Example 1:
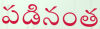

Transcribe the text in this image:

పడినంత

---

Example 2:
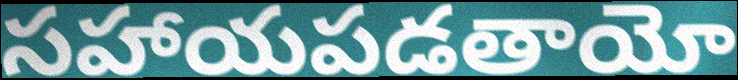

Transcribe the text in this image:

సహాయపడతాయో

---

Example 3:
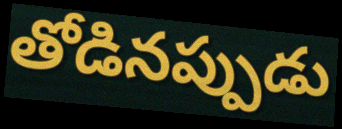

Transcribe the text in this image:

తోడినప్పుడు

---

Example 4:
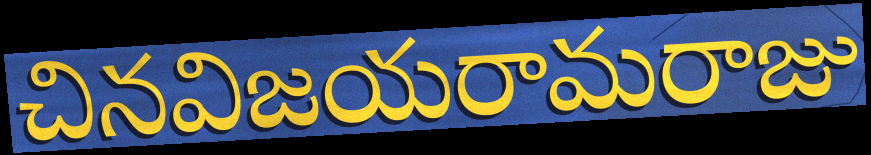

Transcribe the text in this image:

చినవిజయరామరాజు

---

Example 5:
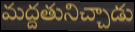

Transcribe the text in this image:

మద్దతునిచ్చాడు